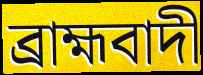
ব্রাহ্মবাদী